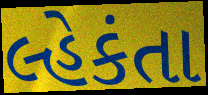
લ્હેકંતા